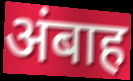
अंबाह